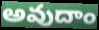
అవుదాం